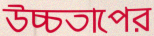
উচ্চতাপের